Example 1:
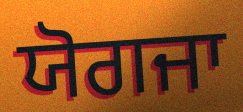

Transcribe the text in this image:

ਯੋਗਜਾ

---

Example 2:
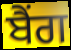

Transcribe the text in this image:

ਬੈਂਗ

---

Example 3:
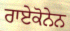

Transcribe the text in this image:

ਰਾਏਕੋਨੇਨ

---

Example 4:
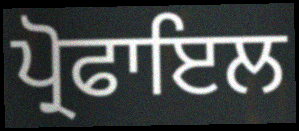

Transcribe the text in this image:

ਪ੍ਰੋਫਾਇਲ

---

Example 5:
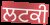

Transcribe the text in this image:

ਲਟਕੀ